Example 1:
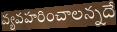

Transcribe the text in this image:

వ్యవహరించాలన్నదే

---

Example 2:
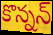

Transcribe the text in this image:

కొన్నన్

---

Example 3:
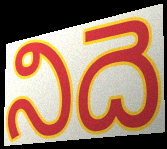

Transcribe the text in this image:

నిదె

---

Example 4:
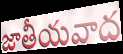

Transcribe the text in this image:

జాతీయవాద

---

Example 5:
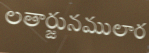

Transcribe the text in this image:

లతార్జునములార